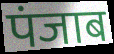
पंजाब